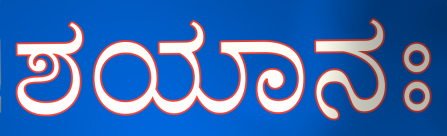
ಶಯಾನಃ